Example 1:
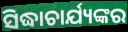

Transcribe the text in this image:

ସିଦ୍ଧାଚାର୍ଯ୍ୟଙ୍କର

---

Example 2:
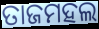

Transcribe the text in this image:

ତାଜମହଲ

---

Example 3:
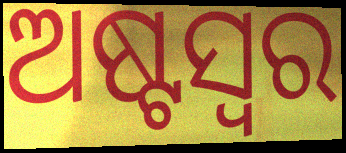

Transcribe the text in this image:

ଅଷ୍ଟସ୍ୱର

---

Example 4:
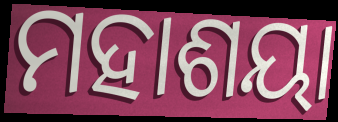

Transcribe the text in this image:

ମହାଶୟା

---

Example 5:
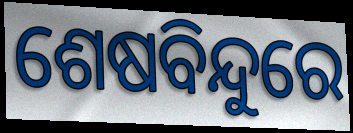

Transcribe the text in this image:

ଶେଷବିନ୍ଦୁରେ